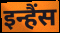
इन्हैंस